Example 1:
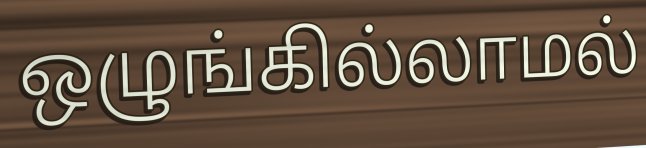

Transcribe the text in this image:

ஒழுங்கில்லாமல்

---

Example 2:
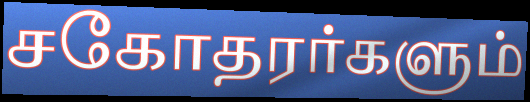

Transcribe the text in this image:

சகோதரர்களும்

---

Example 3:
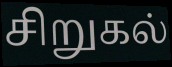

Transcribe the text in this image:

சிறுகல்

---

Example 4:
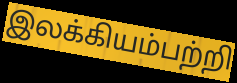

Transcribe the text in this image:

இலக்கியம்பற்றி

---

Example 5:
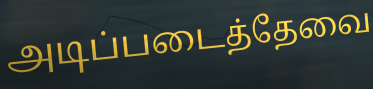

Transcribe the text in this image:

அடிப்படைத்தேவை